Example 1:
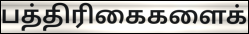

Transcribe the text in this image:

பத்திரிகைகளைக்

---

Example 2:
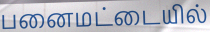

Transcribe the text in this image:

பனைமட்டையில்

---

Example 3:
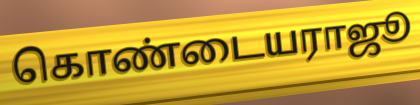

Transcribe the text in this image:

கொண்டையராஜூ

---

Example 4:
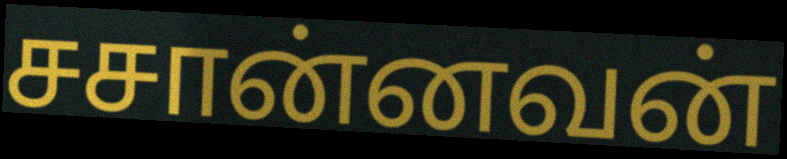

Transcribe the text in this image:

சசான்னவன்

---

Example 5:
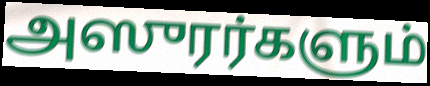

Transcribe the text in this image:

அஸுரர்களும்